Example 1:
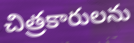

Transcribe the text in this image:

చిత్రకారులను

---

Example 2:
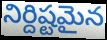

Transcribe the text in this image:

నిర్దిష్టమైన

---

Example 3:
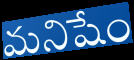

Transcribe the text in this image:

మనిషేం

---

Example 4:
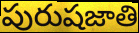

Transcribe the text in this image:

పురుషజాతి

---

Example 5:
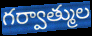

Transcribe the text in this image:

గర్వాత్ముల